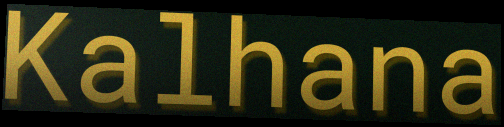
Kalhana